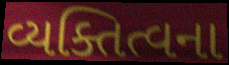
વ્યક્તિત્વના